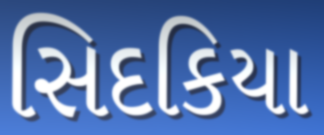
સિદકિયા